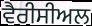
ਵੈਰੀਸੀਅਲ